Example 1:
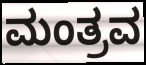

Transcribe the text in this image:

ಮಂತ್ರವ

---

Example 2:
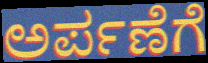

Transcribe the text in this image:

ಅರ್ಪಣೆಗೆ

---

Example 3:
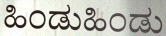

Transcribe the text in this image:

ಹಿಂಡುಹಿಂಡು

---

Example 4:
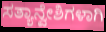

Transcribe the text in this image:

ಸತ್ಯಾನ್ವೇಶಿಗಳಾಗಿ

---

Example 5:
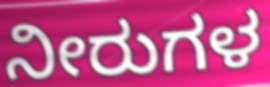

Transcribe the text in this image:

ನೀರುಗಳ